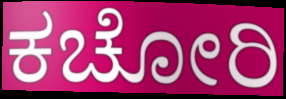
ಕಚೋರಿ